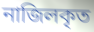
নাজিলকৃত